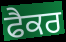
ਫੈਕਰ